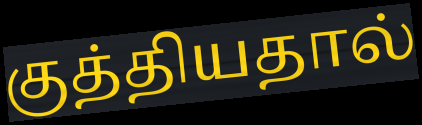
குத்தியதால்